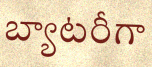
బ్యాటరీగా